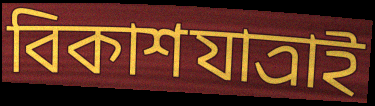
বিকাশযাত্ৰাই